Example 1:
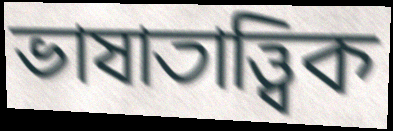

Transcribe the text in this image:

ভাষাতাত্ত্বিক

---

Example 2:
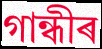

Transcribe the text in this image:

গান্ধীৰ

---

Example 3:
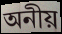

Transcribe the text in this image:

অনীয়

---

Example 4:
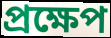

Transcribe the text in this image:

প্ৰক্ষেপ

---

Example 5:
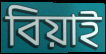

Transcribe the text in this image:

বিয়াই